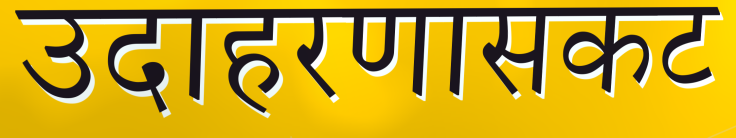
उदाहरणासकट